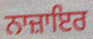
ਨਾਜ਼ਾਇਰ